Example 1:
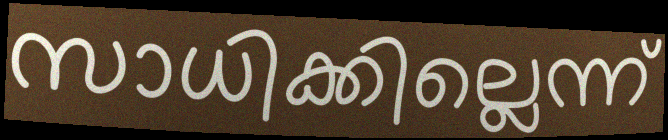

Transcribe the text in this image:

സാധിക്കില്ലെന്ന്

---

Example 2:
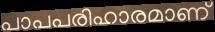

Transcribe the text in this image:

പാപപരിഹാരമാണ്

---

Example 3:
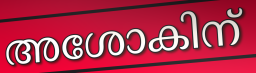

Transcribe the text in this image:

അശോകിന്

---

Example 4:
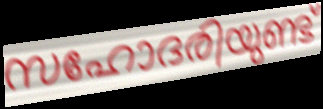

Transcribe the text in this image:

സഹോദരിയുണ്ട്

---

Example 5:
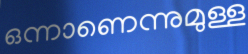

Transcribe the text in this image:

ഒന്നാണെന്നുമുള്ള